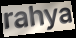
rahya